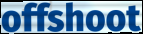
offshoot